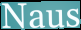
Naus